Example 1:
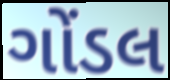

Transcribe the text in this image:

ગોંડલ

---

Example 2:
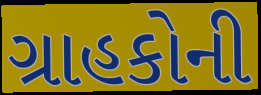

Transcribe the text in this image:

ગ્રાહકોની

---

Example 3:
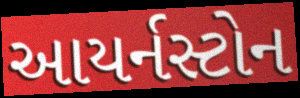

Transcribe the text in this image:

આયર્નસ્ટોન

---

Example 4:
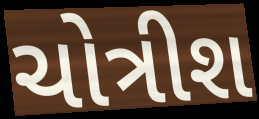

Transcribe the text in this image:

ચોત્રીશ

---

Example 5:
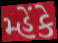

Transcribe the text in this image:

મ્હેંકે